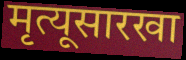
मृत्यूसारखा